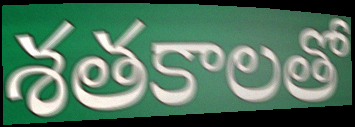
శతకాలతో